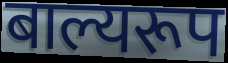
बाल्यरूप